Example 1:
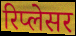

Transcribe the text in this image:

रिप्लेसर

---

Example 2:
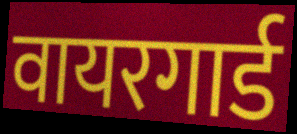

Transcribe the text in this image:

वायरगार्ड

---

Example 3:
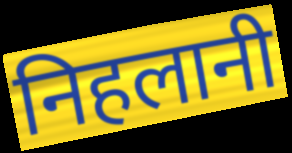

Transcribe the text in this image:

निहलानी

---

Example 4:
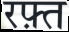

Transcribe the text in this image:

रफ़्त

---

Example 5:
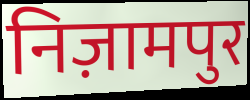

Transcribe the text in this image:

निज़ामपुर